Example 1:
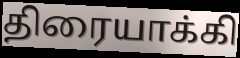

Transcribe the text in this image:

திரையாக்கி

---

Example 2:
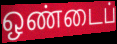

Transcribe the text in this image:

ஒண்டைப்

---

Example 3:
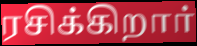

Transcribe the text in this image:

ரசிக்கிறார்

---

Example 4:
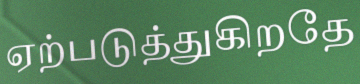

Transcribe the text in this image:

ஏற்படுத்துகிறதே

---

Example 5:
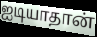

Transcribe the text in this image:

ஐடியாதான்